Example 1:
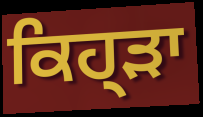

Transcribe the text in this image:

ਕਿਹ੍ੜਾ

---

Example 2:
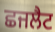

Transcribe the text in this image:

ਛਜਲੈਟ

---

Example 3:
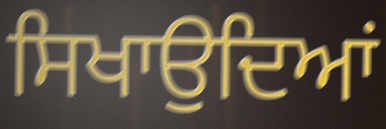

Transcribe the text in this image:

ਸਿਖਾਉਦਿਆਂ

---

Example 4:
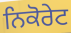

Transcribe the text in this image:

ਨਿਕੋਰੇਟ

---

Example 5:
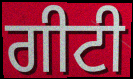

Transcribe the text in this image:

ਗੀਟੀ